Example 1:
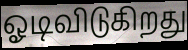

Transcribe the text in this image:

ஓடிவிடுகிறது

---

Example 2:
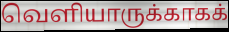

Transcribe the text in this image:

வெளியாருக்காகக்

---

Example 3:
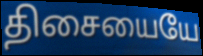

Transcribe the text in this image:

திசையையே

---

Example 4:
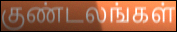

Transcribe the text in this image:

குண்டலங்கள்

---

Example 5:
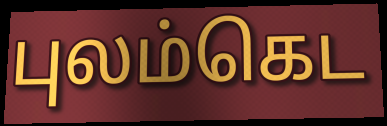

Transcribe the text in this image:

புலம்கெட